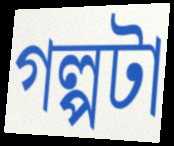
গল্পটা